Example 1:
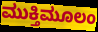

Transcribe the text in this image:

ಮುಕ್ತಿಮೂಲಂ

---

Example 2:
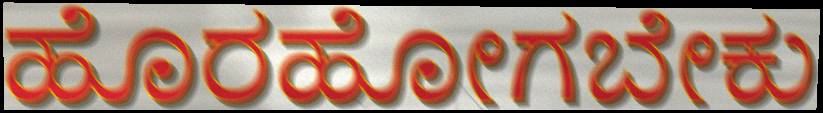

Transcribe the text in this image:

ಹೊರಹೋಗಬೇಕು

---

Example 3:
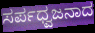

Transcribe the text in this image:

ಸರ್ಪಧ್ವಜನಾದ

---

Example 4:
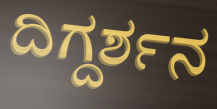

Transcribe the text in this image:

ದಿಗ್ದರ್ಶನ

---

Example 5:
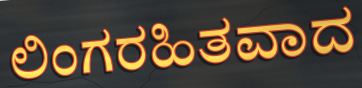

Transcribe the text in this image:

ಲಿಂಗರಹಿತವಾದ